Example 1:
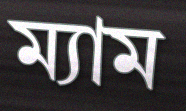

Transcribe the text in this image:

ম্যাম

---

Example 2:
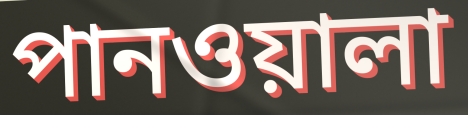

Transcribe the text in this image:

পানওয়ালা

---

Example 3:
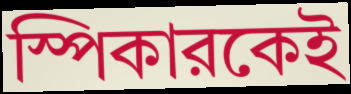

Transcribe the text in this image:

স্পিকারকেই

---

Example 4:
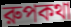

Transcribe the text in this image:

রুপকথা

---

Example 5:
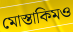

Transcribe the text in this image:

মোস্তাকিমও